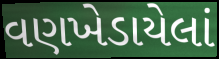
વણખેડાયેલાં